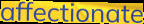
affectionate